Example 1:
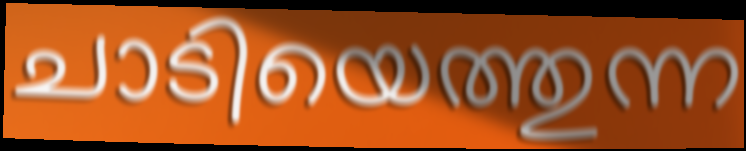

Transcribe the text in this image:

ചാടിയെത്തുന്ന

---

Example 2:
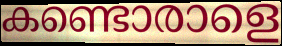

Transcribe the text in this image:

കണ്ടൊരാളെ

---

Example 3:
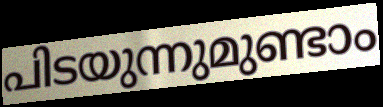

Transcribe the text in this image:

പിടയുന്നുമുണ്ടാം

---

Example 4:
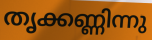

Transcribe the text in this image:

തൃക്കണ്ണിന്നു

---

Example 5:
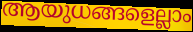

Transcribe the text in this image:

ആയുധങ്ങളെല്ലാം